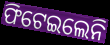
ଫିଟେଇଲେନି